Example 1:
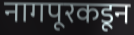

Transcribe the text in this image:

नागपूरकडून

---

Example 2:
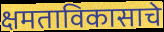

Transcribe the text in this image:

क्षमताविकासाचे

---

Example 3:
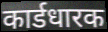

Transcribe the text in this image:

कार्डधारक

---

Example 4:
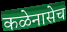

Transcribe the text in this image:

कळेनासेच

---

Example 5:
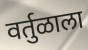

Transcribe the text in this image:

वर्तुळाला